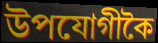
উপযোগীকৈ